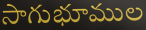
సాగుభూముల